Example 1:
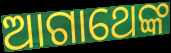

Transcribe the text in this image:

ଆଗାଥେଙ୍କ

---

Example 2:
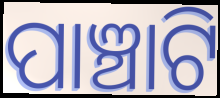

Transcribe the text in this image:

ପାଞ୍ଚାଟି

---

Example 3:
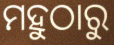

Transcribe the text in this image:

ମହୁଠାରୁ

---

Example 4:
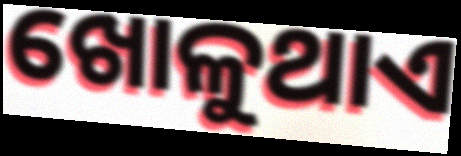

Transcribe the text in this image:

ଖୋଳୁଥାଏ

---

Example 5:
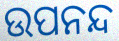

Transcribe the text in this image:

ଉପନନ୍ଦ